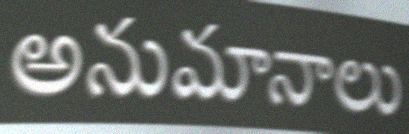
అనుమానాలు